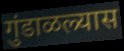
गुंडाळल्यास